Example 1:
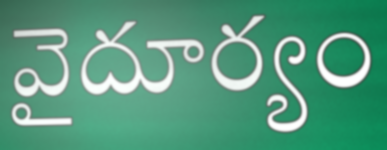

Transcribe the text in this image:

వైదూర్యం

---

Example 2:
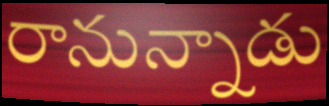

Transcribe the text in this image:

రానున్నాడు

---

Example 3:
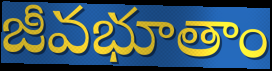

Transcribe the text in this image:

జీవభూతాం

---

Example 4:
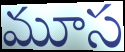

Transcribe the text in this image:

మూస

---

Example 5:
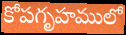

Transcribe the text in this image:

కోపగృహములో